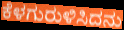
ಕೆಳಗುರುಳಿಸಿದನು